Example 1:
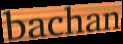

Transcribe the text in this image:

bachan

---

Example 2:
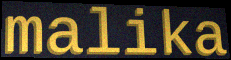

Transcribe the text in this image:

malika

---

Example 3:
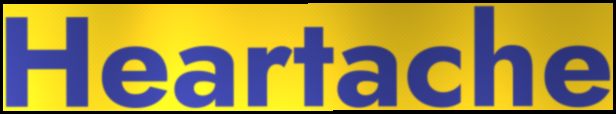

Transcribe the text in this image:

Heartache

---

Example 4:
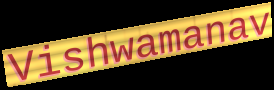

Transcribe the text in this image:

Vishwamanav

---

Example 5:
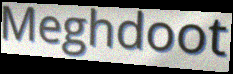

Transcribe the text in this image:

Meghdoot